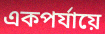
একপর্যায়ে